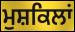
ਮੁਸ਼ਕਿਲਾਂ